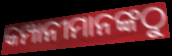
କମ୍ପାନୀମାନଙ୍କଠୁ